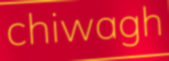
chiwagh